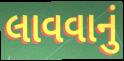
લાવવાનું